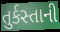
તુર્કસ્તાની